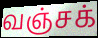
வஞ்சக்